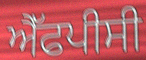
ਐੱਫਪੀਸੀ